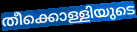
തീക്കൊള്ളിയുടെ